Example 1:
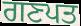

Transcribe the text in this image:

ਗਣਪਤ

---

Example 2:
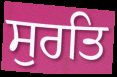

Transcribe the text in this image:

ਸੁਰਤਿ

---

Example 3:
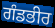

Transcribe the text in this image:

ਗੰਡਭੀਰ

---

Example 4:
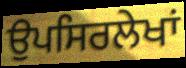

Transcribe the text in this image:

ਉਪਸਿਰਲੇਖਾਂ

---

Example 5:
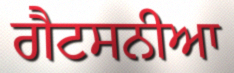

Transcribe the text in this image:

ਗੈਟਸਨੀਆ